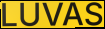
LUVAS